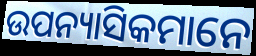
ଉପନ୍ୟାସିକମାନେ